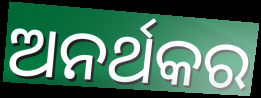
ଅନର୍ଥକର